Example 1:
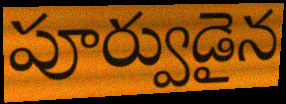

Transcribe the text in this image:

పూర్వుడైన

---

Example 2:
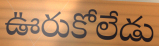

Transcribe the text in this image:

ఊరుకోలేడు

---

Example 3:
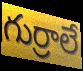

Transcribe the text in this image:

గుర్రాలే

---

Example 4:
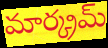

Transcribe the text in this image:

మార్క్రమ్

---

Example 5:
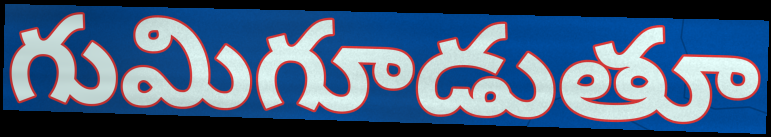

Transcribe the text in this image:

గుమిగూడుతూ